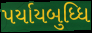
પર્યાયબુધ્ધિ